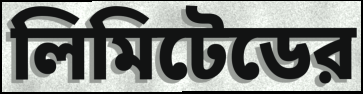
লিমিটেডের